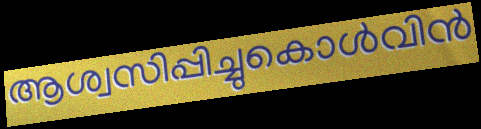
ആശ്വസിപ്പിച്ചുകൊൾവിൻ